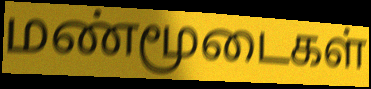
மண்மூடைகள்